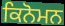
ਕਿਨੋਮਨ